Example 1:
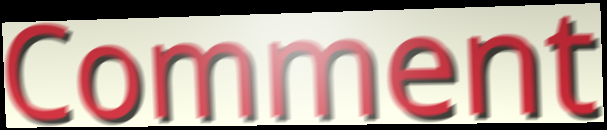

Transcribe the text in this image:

Comment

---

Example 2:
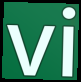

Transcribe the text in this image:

vi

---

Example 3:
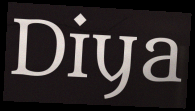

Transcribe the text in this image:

Diya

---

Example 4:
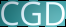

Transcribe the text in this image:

CGD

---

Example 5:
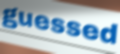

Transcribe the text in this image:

guessed